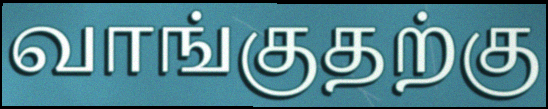
வாங்குதற்கு